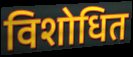
विशोधित